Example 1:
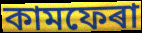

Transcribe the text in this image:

কামফেৰা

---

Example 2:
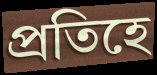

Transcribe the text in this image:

প্ৰতিহে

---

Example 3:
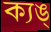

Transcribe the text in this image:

ক্যঙ্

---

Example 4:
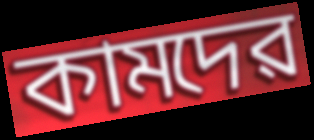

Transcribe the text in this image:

কামদেৱ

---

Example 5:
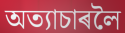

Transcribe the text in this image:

অত্যাচাৰলৈ